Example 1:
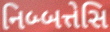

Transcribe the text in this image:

નિબ્બત્તેસિ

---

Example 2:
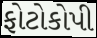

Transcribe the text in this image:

ફોટોકોપી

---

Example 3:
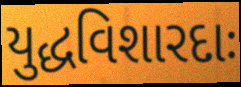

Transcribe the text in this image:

યુદ્ધવિશારદાઃ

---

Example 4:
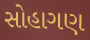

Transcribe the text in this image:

સોહાગણ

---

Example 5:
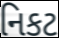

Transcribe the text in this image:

નિકટ